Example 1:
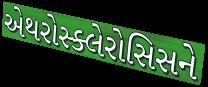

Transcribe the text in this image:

એથરોસ્ક્લેરોસિસને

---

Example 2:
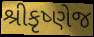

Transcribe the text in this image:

શ્રીકૃષ્ણેજ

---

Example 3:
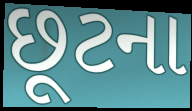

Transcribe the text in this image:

છૂટના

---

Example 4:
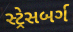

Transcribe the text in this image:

સ્ટ્રેસબર્ગ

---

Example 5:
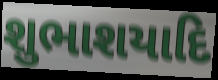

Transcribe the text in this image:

શુભાશયાદિ